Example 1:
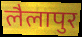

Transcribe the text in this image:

लैलापुर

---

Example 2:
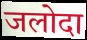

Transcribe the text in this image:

जलोदा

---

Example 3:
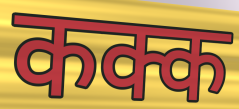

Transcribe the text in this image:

कक्क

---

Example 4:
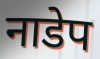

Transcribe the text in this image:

नाडेप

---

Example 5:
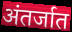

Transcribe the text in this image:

अंतर्जात